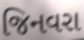
જિનવરા